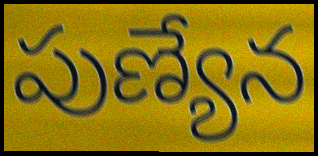
పుణ్యేన